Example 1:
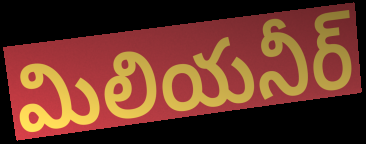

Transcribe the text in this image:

మిలియనీర్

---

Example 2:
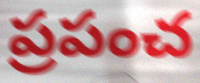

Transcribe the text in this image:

ప్రపంచ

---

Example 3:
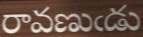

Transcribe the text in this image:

రావణుఁడు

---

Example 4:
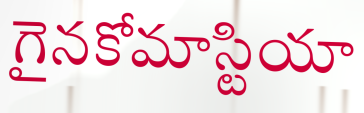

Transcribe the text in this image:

గైనకోమాస్టియా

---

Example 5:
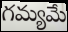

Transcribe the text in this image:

గమ్యమే